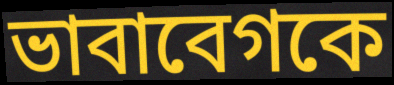
ভাবাবেগকে